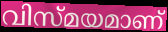
വിസ്മയമാണ്